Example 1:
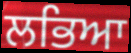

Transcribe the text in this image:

ਲਭਿਆ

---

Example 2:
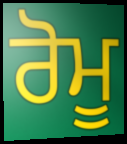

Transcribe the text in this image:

ਰੋਮੂ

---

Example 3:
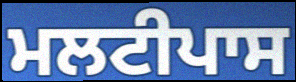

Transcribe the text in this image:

ਮਲਟੀਪਾਸ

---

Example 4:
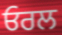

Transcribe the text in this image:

ਓਰਲ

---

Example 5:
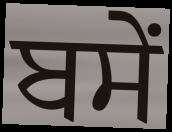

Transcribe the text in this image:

ਬਸੇਂ